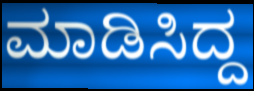
ಮಾಡಿಸಿದ್ದ